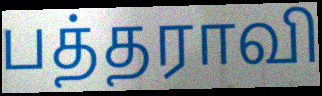
பத்தராவி